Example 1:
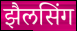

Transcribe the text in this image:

झैलसिंग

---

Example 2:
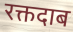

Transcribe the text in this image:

रक्तदाब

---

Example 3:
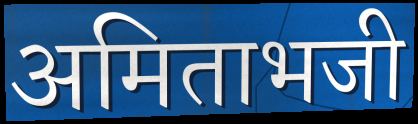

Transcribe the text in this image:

अमिताभजी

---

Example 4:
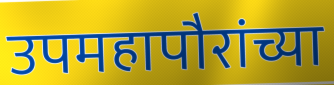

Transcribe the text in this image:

उपमहापौरांच्या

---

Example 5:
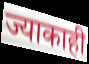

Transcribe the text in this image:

ज्याकाही